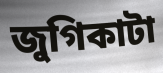
জুগিকাটা